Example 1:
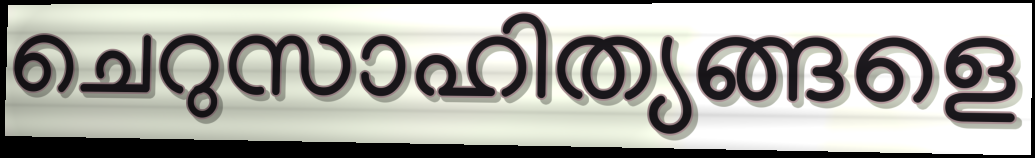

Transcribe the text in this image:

ചെറുസാഹിത്യങ്ങളെ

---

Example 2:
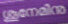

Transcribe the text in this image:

ശൂനേമിനു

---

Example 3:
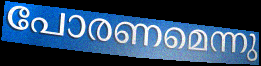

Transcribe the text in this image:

പോരണമെന്നു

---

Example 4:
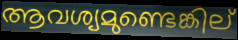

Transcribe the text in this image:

ആവശ്യമുണ്ടെങ്കില്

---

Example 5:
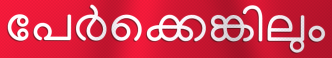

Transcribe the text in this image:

പേർക്കെങ്കിലും